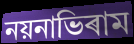
নয়নাভিৰাম